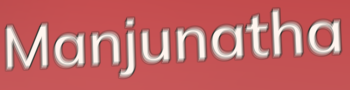
Manjunatha